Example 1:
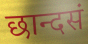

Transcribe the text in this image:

छान्दसं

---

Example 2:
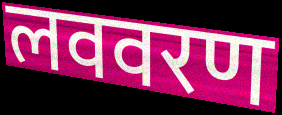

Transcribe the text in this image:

लववरण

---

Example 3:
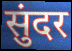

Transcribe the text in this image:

सुंदर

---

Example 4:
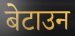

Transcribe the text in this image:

बेटाउन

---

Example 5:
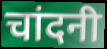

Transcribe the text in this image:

चांदनी